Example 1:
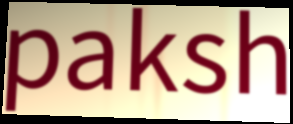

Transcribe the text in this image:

paksh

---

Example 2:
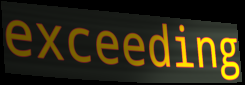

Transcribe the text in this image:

exceeding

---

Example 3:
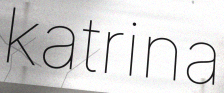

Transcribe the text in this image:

katrina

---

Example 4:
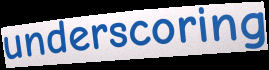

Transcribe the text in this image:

underscoring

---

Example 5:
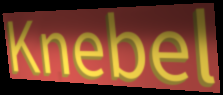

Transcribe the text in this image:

Knebel